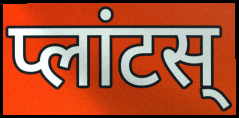
प्लांटस्